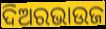
ଦିଅରଭାଉଜ